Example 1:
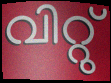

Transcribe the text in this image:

വിറ്റു്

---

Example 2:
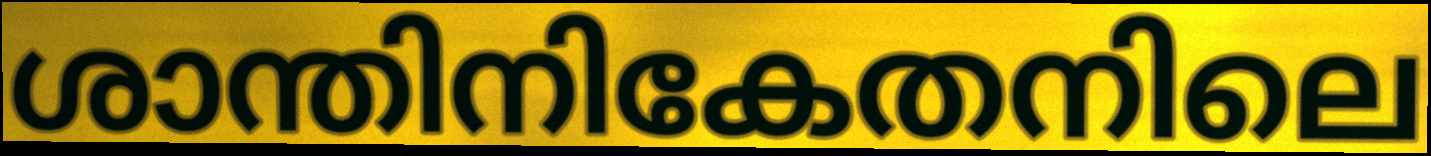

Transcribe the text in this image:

ശാന്തിനികേതനിലെ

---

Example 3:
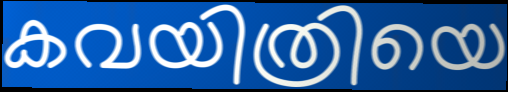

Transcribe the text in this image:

കവയിത്രിയെ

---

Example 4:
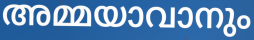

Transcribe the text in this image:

അമ്മയാവാനും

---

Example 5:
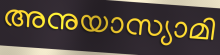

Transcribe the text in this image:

അനുയാസ്യാമി